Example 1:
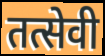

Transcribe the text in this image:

तत्सेवी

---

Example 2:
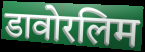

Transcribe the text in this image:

डावोरलिम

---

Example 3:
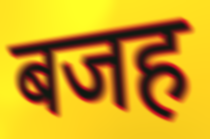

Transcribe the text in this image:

बजह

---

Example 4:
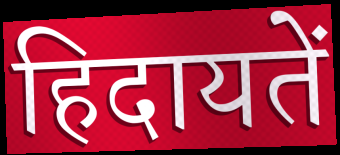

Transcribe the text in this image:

हिदायतें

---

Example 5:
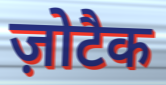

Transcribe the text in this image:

ज़ोटैक